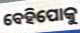
ବେହିପୋକୁ